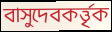
বাসুদেবকর্ত্তৃক